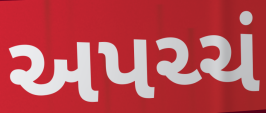
અપચ્ચં